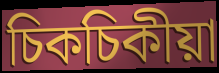
চিকচিকীয়া